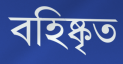
বহিষ্কৃত